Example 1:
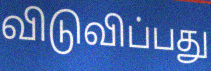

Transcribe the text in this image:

விடுவிப்பது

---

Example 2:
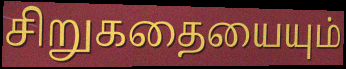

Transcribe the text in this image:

சிறுகதையையும்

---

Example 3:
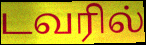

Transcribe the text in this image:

டவரில்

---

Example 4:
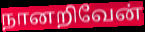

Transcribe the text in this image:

நானறிவேன்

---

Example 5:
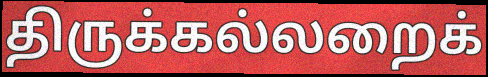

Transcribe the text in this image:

திருக்கல்லறைக்